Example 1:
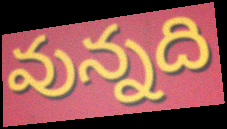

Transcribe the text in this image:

వున్నది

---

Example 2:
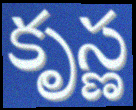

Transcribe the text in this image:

కృస్ణ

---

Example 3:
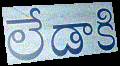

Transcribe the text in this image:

లేడాకి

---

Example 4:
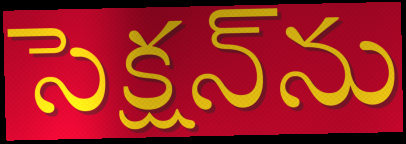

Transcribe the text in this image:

సెక్షన్‌ను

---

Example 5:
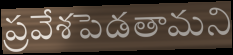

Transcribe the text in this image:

ప్రవేశపెడతామని